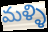
మళ్ళి